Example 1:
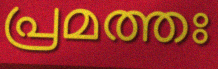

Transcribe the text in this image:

പ്രമത്തഃ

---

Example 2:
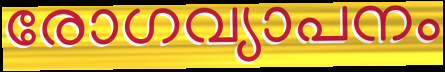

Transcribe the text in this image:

രോഗവ്യാപനം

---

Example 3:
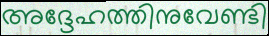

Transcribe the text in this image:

അദ്ദേഹത്തിനുവേണ്ടി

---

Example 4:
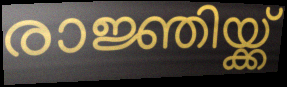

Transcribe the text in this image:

രാജ്ഞിയ്ക്ക്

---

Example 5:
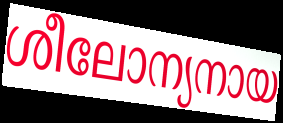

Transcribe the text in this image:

ശീലോന്യനായ